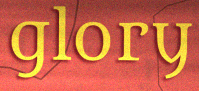
glory